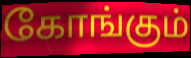
கோங்கும்